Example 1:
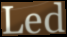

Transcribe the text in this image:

Led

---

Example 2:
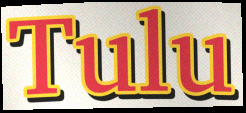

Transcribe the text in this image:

Tulu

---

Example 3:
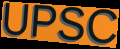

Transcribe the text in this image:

UPSC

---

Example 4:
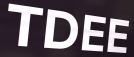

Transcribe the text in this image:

TDEE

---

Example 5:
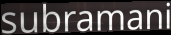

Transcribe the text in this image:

subramani